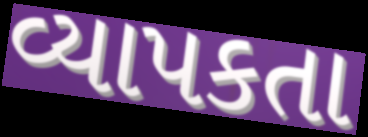
વ્યાપકતા